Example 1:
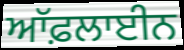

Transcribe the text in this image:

ਆੱਫ਼ਲਾਈਨ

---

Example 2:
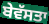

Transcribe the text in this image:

ਬੇਵੱਸਤਾ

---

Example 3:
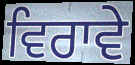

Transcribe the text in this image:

ਵਿਰਾਵੇ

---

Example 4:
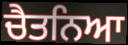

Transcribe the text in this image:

ਚੈਤਨਿਆ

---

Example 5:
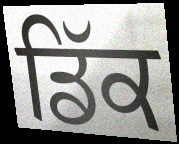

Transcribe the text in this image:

ਡਿੱਕ